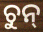
ଚୁନ୍